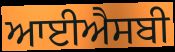
ਆਈਐਸਬੀ